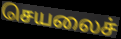
செயலைச்